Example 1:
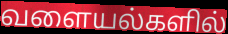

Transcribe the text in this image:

வளையல்களில்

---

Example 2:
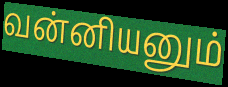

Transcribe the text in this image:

வன்னியனும்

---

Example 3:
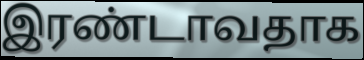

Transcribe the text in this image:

இரண்டாவதாக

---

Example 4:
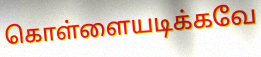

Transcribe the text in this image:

கொள்ளையடிக்கவே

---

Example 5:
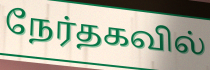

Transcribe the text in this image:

நேர்தகவில்